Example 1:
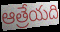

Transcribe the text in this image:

ఆత్రేయది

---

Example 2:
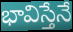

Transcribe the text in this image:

భావిస్తేనే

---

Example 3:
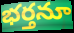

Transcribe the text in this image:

భర్తనూ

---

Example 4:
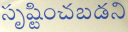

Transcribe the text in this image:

సృష్టించబడని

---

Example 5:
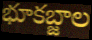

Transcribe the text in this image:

భూకబ్జాల